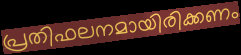
പ്രതിഫലനമായിരിക്കണം